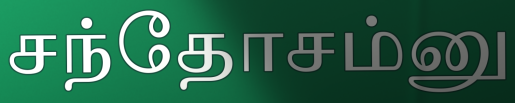
சந்தோசம்னு